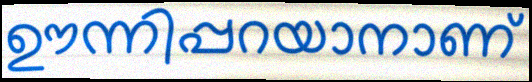
ഊന്നിപ്പറയാനാണ്